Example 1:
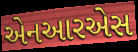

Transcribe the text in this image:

એનઆરએસ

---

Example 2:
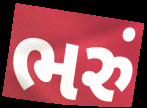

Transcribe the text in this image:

ભરું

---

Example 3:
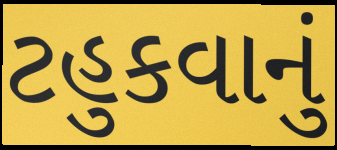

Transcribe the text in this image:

ટહુકવાનું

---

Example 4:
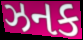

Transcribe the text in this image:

ઝનક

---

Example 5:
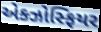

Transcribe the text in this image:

એક્ઝોસ્ફિયર